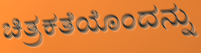
ಚಿತ್ರಕತೆಯೊಂದನ್ನು